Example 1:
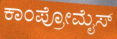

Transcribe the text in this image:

ಕಾಂಪ್ರೋಮೈಸ್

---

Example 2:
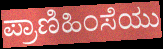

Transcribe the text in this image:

ಪ್ರಾಣಿಹಿಂಸೆಯು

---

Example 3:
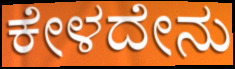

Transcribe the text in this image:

ಕೇಳದೇನು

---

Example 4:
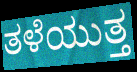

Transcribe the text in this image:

ತಳೆಯುತ್ತ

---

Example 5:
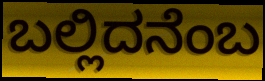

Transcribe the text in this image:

ಬಲ್ಲಿದನೆಂಬ